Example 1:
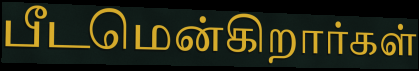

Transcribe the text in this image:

பீடமென்கிறார்கள்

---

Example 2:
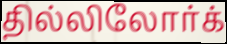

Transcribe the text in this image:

தில்லிலோர்க்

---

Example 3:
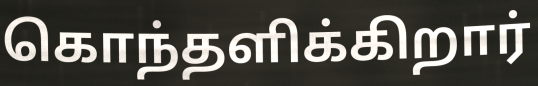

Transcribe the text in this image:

கொந்தளிக்கிறார்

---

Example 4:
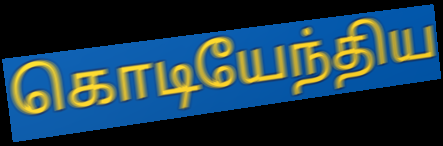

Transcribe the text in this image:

கொடியேந்திய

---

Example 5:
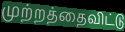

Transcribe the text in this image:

முற்றத்தைவிட்டு